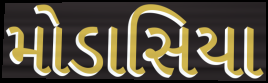
મોડાસિયા